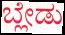
ಬ್ಲೇಡು